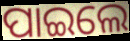
ପାଇଲେ